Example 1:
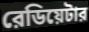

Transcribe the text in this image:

রেডিয়েটার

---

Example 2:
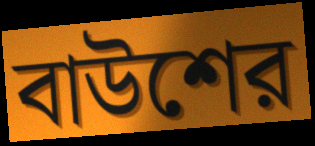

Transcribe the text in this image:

বাউশের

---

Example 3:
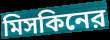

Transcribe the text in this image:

মিসকিনের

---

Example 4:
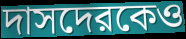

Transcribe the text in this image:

দাসদেরকেও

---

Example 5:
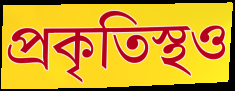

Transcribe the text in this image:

প্রকৃতিস্থও